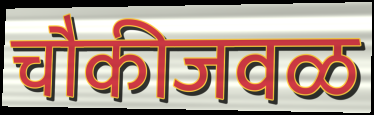
चौकीजवळ